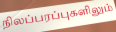
நிலப்பரப்புகளிலும்